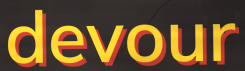
devour